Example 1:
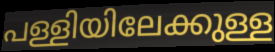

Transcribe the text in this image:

പള്ളിയിലേക്കുള്ള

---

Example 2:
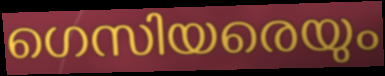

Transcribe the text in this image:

ഗെസിയരെയും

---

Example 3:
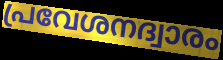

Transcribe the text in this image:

പ്രവേശനദ്വാരം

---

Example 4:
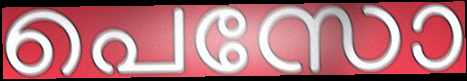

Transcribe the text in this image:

പെസോ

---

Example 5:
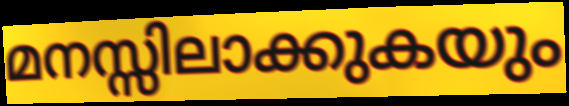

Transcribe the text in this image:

മനസ്സിലാക്കുകയും